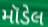
મૉડેલ